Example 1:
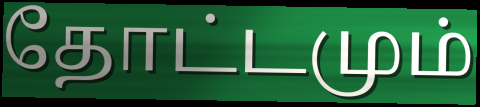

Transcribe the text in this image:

தோட்டமும்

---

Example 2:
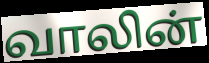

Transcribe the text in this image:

வாலின்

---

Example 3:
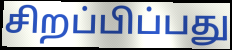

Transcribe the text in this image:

சிறப்பிப்பது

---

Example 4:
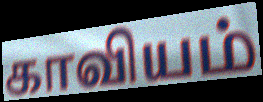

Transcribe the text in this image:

காவியம்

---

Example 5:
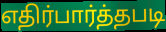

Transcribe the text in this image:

எதிர்பார்த்தபடி